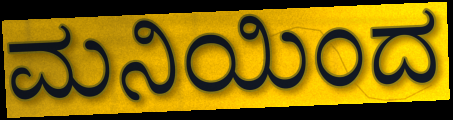
ಮನಿಯಿಂದ